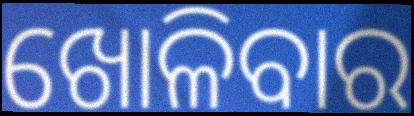
ଖୋଳିବାର